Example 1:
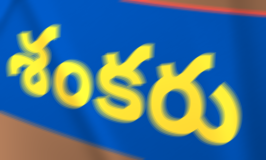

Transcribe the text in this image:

శంకరు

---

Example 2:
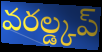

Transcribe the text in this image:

వరల్డ్కప్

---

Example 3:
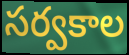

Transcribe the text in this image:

సర్వకాల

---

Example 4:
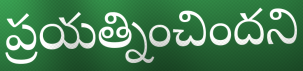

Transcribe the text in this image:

ప్రయత్నించిందని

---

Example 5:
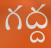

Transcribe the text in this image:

గద్ద